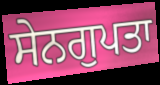
ਸੇਨਗੁਪਤਾ